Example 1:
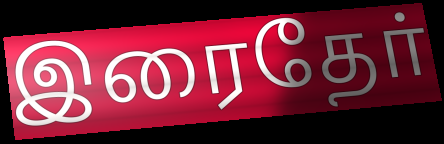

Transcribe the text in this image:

இரைதேர்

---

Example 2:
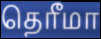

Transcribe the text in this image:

தெரீமா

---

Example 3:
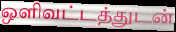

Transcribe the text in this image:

ஒளிவட்டத்துடன்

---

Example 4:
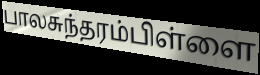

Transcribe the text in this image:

பாலசுந்தரம்பிள்ளை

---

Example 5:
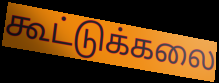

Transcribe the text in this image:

கூட்டுக்கலை